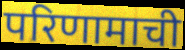
परिणामाची